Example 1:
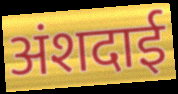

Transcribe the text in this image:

अंशदाई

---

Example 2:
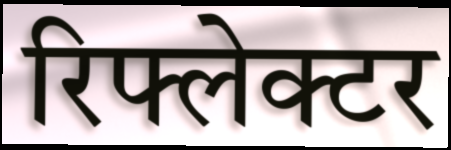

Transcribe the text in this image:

रिफ्लेक्टर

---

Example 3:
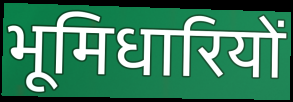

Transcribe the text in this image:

भूमिधारियों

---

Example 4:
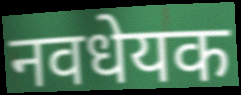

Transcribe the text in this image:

नवधेयक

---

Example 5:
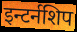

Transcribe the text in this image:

इन्टर्नशिप